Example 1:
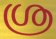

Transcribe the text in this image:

ശ്ര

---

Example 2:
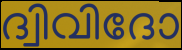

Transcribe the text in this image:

ദ്വിവിദോ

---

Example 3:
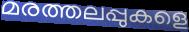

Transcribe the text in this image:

മരത്തലപ്പുകളെ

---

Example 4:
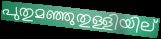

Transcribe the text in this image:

പുതുമഞ്ഞുതുള്ളിയില്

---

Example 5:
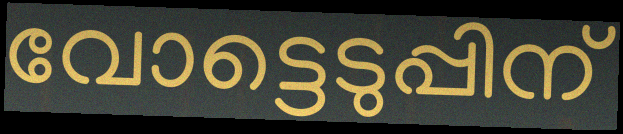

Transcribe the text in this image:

വോട്ടെടുപ്പിന്